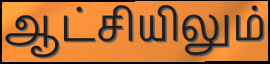
ஆட்சியிலும்